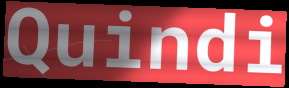
Quindi